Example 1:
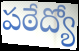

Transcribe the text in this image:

పఠేద్యో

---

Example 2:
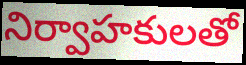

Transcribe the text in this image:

నిర్వాహకులతో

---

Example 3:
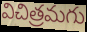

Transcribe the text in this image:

విచిత్రమగు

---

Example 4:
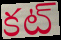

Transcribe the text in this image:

కట్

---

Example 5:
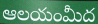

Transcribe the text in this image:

ఆలయంమీద